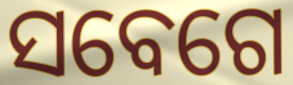
ସବେଗେ